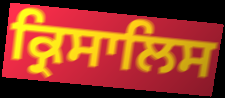
ਕ੍ਰਿਸਾਲਿਸ